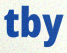
tby